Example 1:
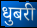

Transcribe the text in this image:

धुबरी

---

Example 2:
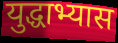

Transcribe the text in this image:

युद्धाभ्यास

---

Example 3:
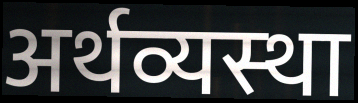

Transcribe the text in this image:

अर्थव्यस्था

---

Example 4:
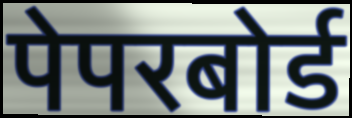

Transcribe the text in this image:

पेपरबोर्ड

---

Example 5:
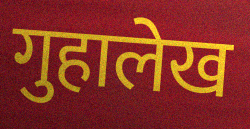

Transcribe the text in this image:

गुहालेख